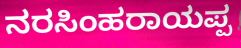
ನರಸಿಂಹರಾಯಪ್ಪ